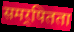
समर्पितता